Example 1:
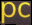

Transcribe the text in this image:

pc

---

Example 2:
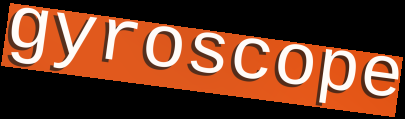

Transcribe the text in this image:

gyroscope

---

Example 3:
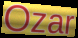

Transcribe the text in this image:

Ozar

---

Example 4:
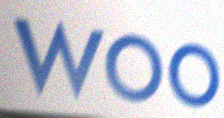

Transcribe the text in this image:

woo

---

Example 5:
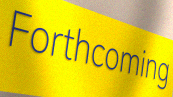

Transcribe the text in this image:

Forthcoming